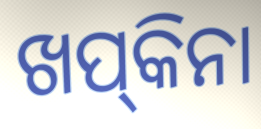
ଖପ୍‌କିନା